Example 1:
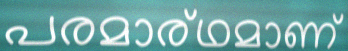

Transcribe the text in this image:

പരമാര്ഥമാണ്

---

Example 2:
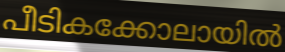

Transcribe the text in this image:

പീടികക്കോലായിൽ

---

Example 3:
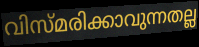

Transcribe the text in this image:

വിസ്മരിക്കാവുന്നതല്ല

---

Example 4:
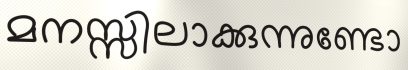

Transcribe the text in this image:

മനസ്സിലാക്കുന്നുണ്ടോ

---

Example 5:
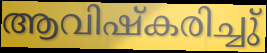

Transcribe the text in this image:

ആവിഷ്കരിച്ചു്